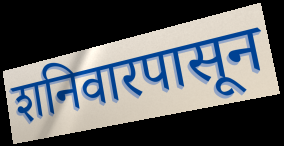
शनिवारपासून